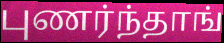
புணர்ந்தாங்